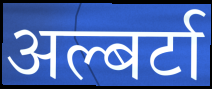
अल्बर्टा